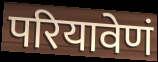
परियावेणं